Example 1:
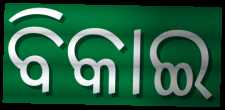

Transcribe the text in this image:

ବିକାଇ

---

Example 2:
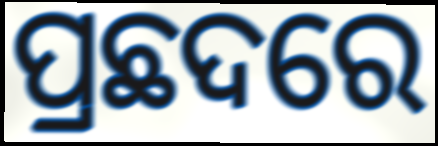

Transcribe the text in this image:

ପ୍ରଛଦରେ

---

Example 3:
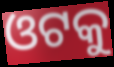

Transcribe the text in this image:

ଓଟକୁ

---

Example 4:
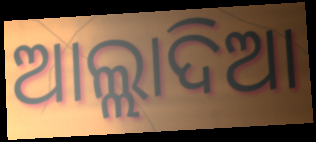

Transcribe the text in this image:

ଆଲ୍ଲାଦିଆ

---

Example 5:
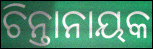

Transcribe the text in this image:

ଚିନ୍ତାନାୟକ